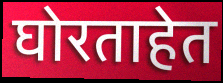
घोरताहेत